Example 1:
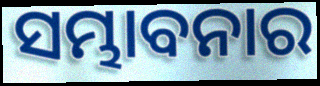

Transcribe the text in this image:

ସମ୍ଭାବନାର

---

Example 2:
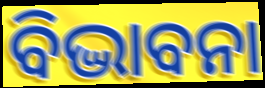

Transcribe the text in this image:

ବିଦ୍ଭାବନା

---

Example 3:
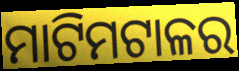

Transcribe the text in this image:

ମାଟିମଟାଳର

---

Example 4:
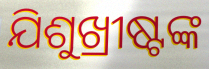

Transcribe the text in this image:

ଯିଶୁଖ୍ରୀଷ୍ଟଙ୍କ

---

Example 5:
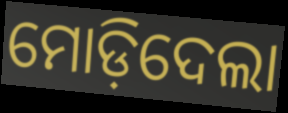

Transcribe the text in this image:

ମୋଡ଼ିଦେଲା